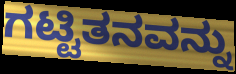
ಗಟ್ಟಿತನವನ್ನು